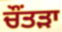
ਚੌਂਤੜਾ